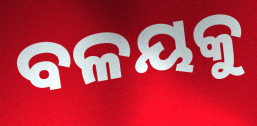
ବଳୟକୁ